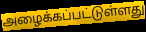
அழைக்கப்பட்டுள்ளது